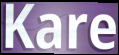
Kare